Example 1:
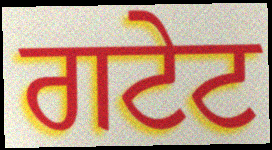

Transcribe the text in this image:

ਗਟੇਟ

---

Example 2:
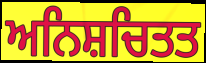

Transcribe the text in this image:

ਅਨਿਸ਼ਚਿਤਤ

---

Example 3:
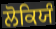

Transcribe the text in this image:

ਲੋਕਿਯੰ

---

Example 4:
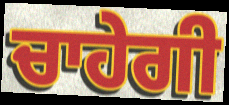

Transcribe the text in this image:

ਚਾਹੇਗੀ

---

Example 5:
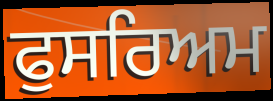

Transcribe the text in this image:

ਫੁਸਰਿਅਮ